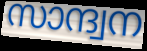
സാന്ദ്വന